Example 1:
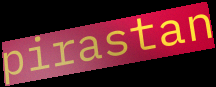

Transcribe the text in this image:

pirastan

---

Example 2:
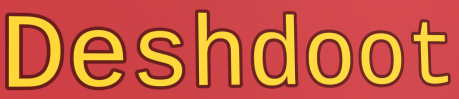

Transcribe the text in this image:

Deshdoot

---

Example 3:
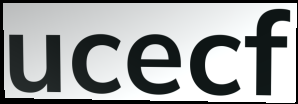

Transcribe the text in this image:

ucecf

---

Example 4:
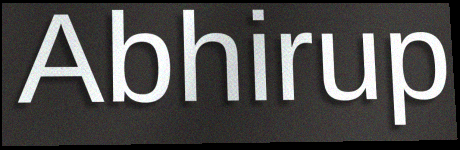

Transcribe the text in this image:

Abhirup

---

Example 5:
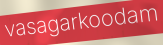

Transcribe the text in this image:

vasagarkoodam